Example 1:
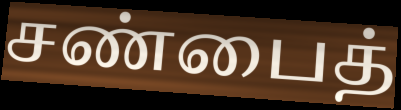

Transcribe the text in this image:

சண்பைத்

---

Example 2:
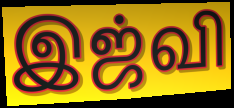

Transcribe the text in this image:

இஜ்வி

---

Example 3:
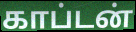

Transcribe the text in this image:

காப்டன்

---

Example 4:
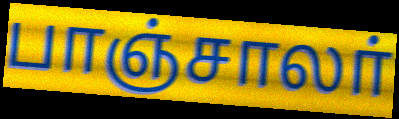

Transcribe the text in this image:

பாஞ்சாலர்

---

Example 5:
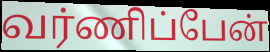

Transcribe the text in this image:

வர்ணிப்பேன்